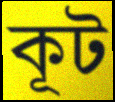
কূট